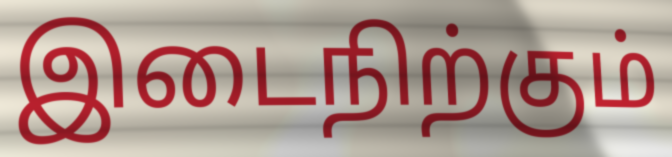
இடைநிற்கும்